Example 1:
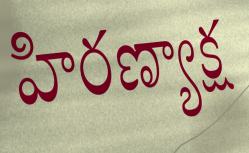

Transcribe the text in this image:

హిరణ్యాక్ష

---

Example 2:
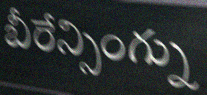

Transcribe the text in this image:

బీరేన్సింగ్ను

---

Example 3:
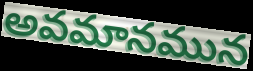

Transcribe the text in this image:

అవమానమున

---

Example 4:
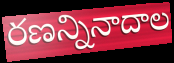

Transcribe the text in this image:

రణన్నినాదాల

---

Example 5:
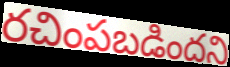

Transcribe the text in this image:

రచింపబడిందని